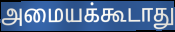
அமையக்கூடாது